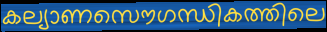
കല്യാണസൌഗന്ധികത്തിലെ